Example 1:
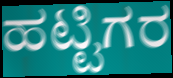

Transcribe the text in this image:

ಹಟ್ಟಿಗರ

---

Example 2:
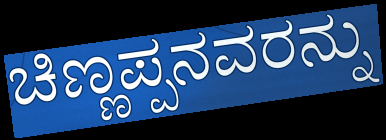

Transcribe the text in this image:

ಚಿಣ್ಣಪ್ಪನವರನ್ನು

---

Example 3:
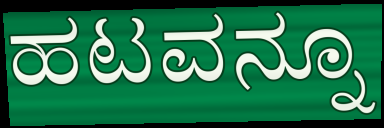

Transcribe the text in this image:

ಹಟವನ್ನೂ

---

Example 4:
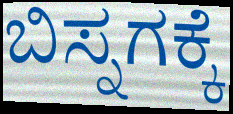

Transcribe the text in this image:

ಬಿಸ್ನಗಕ್ಕೆ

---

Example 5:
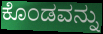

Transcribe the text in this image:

ಕೊಂಡವನ್ನು